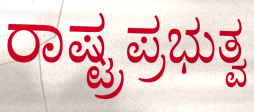
ರಾಷ್ಟ್ರಪ್ರಭುತ್ವ